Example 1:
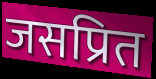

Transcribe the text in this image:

जसप्रित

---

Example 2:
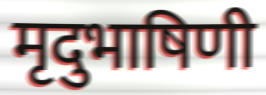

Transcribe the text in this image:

मृदुभाषिणी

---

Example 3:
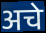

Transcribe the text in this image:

अचे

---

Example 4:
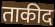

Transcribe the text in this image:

ताकीद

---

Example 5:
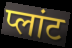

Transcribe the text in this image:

प्‍लांट